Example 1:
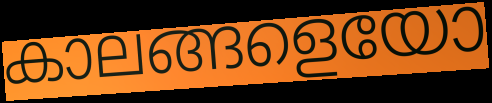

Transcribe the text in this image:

കാലങ്ങളെയോ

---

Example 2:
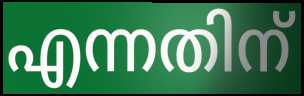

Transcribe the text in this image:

എന്നതിന്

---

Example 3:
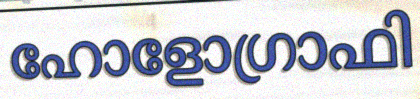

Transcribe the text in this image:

ഹോളോഗ്രാഫി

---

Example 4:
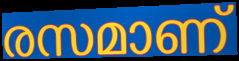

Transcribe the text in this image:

രസമാണ്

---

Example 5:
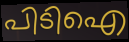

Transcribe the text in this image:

പിടിഐ